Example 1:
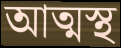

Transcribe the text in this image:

আত্মস্থ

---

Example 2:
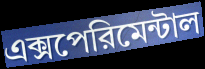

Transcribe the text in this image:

এক্সপেরিমেন্টাল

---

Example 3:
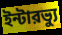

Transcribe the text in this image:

ইন্টারভ্যু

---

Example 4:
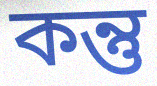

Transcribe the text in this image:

কন্তু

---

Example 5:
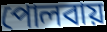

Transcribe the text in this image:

পোলবায়